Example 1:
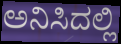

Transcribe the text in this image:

ಅನಿಸಿದಲ್ಲಿ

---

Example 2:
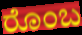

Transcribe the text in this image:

ರೊಂಬ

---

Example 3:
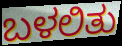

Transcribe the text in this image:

ಬಳಲಿತು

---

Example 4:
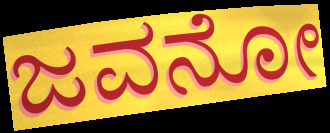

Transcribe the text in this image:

ಜವನೋ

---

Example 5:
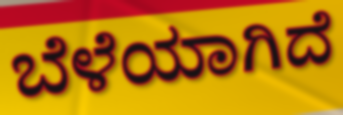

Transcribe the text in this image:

ಬೆಳೆಯಾಗಿದೆ